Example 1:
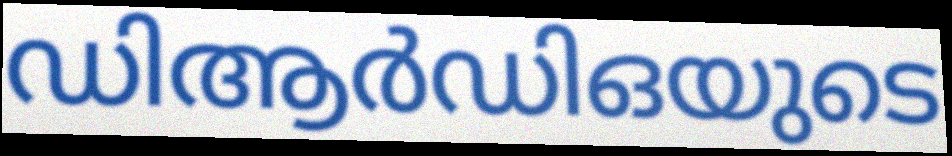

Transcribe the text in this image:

ഡിആർഡിഒയുടെ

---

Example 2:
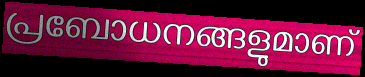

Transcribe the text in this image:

പ്രബോധനങ്ങളുമാണ്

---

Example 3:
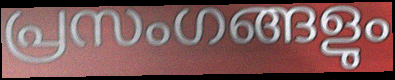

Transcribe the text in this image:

പ്രസംഗങ്ങളും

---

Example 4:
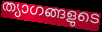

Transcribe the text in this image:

ത്യാഗങ്ങളുടെ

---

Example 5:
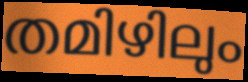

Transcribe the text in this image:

തമിഴിലും